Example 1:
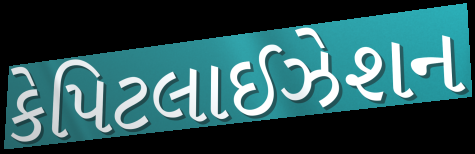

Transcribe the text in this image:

કેપિટલાઈઝેશન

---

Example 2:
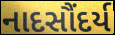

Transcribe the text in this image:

નાદસૌંદર્ય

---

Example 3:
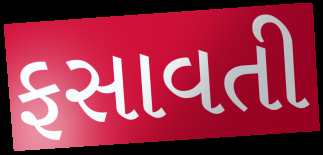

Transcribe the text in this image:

ફસાવતી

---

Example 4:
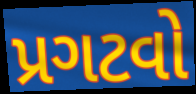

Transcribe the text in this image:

પ્રગટવો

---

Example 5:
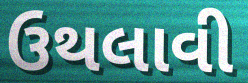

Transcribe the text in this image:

ઉથલાવી